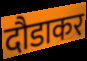
दौडाकर